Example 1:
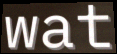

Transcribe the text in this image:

wat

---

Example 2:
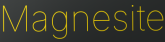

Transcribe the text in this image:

Magnesite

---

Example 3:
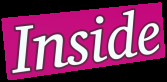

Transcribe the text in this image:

Inside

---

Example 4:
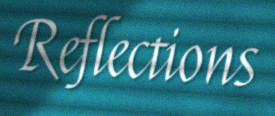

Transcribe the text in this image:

Reflections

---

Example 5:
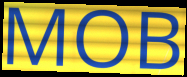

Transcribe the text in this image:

MOB